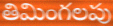
తిమింగలపు